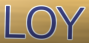
LOY